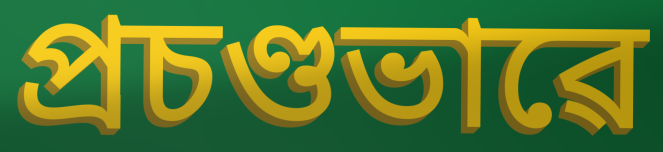
প্ৰচণ্ডভাৱে